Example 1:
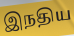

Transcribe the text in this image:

இநதிய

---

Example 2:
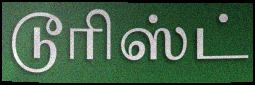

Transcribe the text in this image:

டூரிஸ்ட்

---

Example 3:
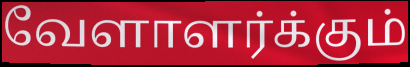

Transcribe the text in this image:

வேளாளர்க்கும்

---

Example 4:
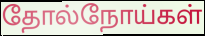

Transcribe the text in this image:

தோல்நோய்கள்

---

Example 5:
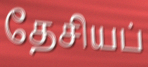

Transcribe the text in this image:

தேசியப்